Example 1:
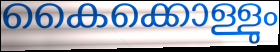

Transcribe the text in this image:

കൈക്കൊള്ളും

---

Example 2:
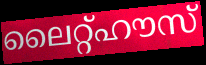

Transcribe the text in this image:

ലൈറ്റ്ഹൗസ്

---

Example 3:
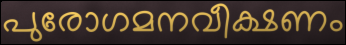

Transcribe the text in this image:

പുരോഗമനവീക്ഷണം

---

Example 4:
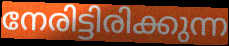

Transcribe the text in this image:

നേരിട്ടിരിക്കുന്ന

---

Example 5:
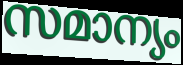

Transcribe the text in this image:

സമാന്യം